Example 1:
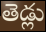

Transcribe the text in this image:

తెడ్లు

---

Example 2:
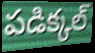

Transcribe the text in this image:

పడిక్కల్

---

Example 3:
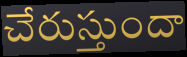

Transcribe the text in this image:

చేరుస్తుందా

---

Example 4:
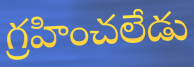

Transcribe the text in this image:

గ్రహించలేడు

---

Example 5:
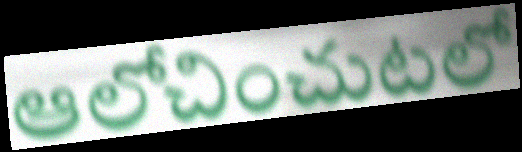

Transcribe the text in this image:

ఆలోచించుటలో